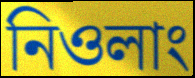
নিওলাং